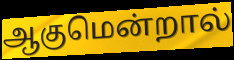
ஆகுமென்றால்